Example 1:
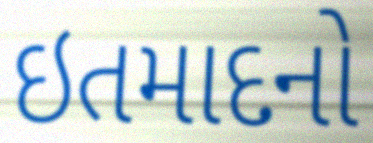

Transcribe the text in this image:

ઇતમાદનો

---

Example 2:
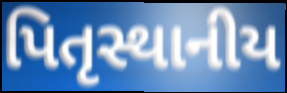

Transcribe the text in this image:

પિતૃસ્થાનીય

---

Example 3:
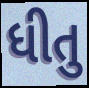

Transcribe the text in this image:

ધીતુ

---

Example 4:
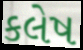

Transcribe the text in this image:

કલેષ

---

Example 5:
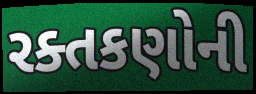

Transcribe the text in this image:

રક્તકણોની